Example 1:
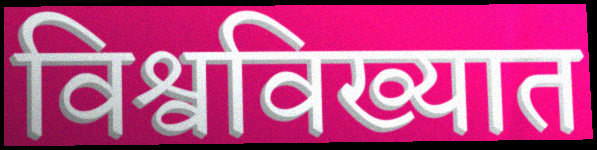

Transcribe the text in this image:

विश्वविख्यात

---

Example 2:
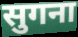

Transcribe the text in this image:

सुगना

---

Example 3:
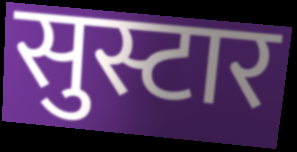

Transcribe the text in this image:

सुस्टार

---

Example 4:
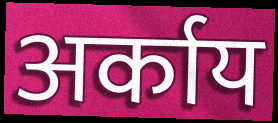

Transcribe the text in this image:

अर्काय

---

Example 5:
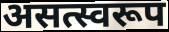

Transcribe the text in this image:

असत्स्वरूप